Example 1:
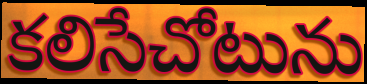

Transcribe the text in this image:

కలిసేచోటును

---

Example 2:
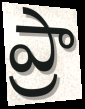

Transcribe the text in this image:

ప్రా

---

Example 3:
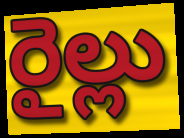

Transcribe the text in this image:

రైల్లు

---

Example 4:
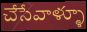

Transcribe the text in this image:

చేసేవాళ్ళూ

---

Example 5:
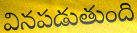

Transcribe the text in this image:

వినపడుతుంది